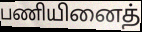
பணியினைத்